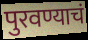
पुरवण्याचं